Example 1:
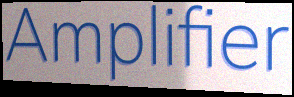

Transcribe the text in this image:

Amplifier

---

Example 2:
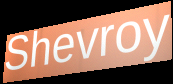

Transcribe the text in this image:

Shevroy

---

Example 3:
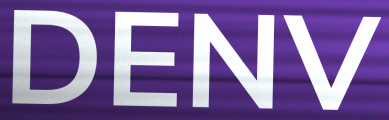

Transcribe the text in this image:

DENV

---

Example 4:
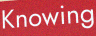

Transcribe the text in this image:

Knowing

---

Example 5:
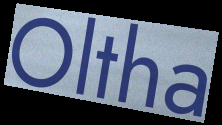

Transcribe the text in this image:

Oltha